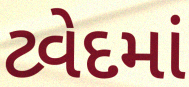
ટ્વેદમાં